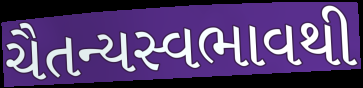
ચૈતન્યસ્વભાવથી